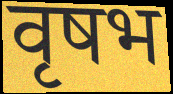
वृषभ